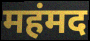
महंमद